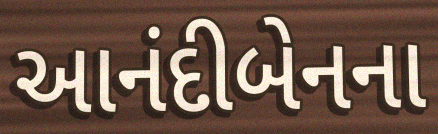
આનંદીબેનના